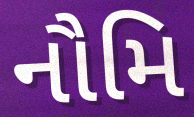
નૌમિ